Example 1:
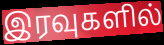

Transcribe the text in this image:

இரவுகளில்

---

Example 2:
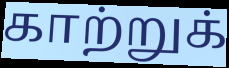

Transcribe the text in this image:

காற்றுக்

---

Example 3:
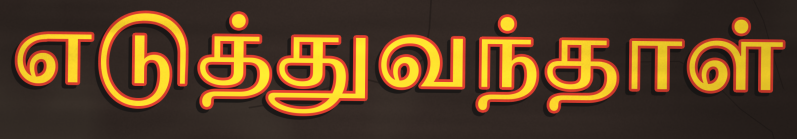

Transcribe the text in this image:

எடுத்துவந்தாள்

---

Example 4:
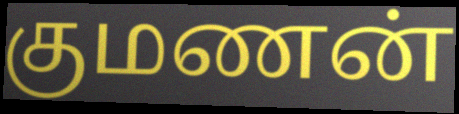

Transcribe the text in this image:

குமணன்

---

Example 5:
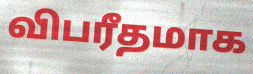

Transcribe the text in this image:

விபரீதமாக